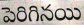
పెరిగినయి